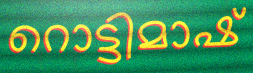
റൊട്ടിമാഷ്